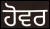
ਹੋਵਰ